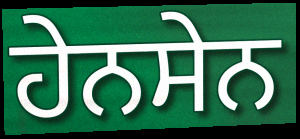
ਹੇਨਸੇਨ